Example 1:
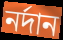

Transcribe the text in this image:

নর্দান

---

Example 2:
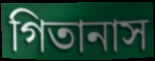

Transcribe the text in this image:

গিতানাস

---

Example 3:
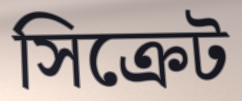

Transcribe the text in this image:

সিক্রেট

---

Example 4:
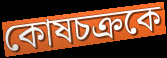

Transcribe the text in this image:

কোষচক্রকে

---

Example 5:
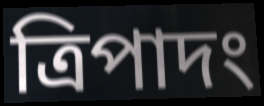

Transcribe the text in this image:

ত্রিপাদং